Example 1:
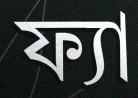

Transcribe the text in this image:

ফ্যা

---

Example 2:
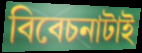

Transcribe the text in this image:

বিবেচনাটাই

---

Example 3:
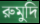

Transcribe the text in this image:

রুমুদি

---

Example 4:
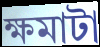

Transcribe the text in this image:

ক্ষমাটা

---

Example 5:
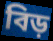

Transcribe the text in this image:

বিড়